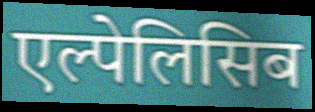
एल्पेलिसिब